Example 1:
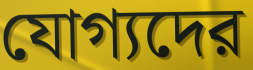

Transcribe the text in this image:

যোগ্যদের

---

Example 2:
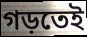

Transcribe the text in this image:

গড়তেই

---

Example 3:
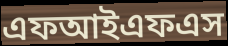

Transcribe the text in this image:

এফআইএফএস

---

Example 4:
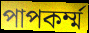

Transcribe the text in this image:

পাপকর্ম্ম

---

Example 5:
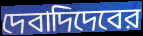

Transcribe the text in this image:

দেবাদিদেবের